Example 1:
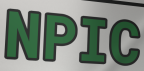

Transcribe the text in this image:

NPIC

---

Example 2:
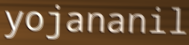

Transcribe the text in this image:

yojananil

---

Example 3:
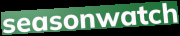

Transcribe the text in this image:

seasonwatch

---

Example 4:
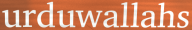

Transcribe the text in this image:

urduwallahs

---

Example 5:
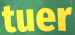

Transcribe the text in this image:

tuer